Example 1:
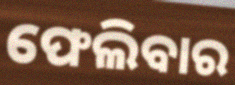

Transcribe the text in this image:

ଫେଲିବାର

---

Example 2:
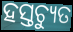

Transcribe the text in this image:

ହସ୍ତଚ୍ୟୁତ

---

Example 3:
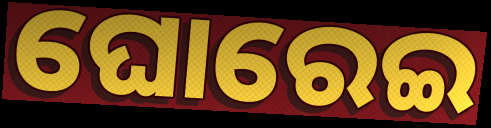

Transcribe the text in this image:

ଘୋରେଇ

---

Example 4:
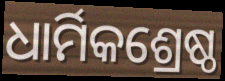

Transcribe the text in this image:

ଧାର୍ମିକଶ୍ରେଷ୍ଠ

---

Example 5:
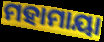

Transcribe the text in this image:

ମହାମାୟା